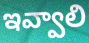
ఇవ్వాలి